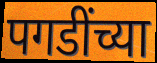
पगडींच्या